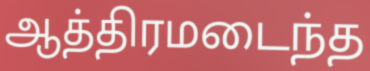
ஆத்திரமடைந்த